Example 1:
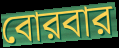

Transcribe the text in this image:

বোরবার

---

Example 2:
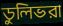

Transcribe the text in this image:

ডুলিভরা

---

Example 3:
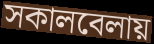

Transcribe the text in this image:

সকালবেলায়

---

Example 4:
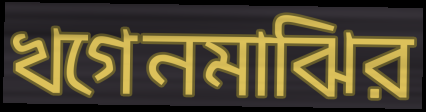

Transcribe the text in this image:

খগেনমাঝির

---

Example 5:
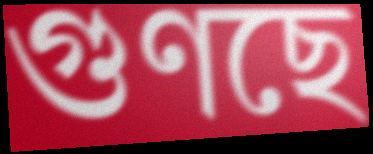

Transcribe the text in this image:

গুণছে